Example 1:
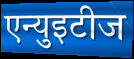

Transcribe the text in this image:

एन्युइटीज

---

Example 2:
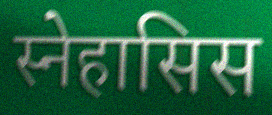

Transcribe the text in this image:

स्नेहासिस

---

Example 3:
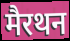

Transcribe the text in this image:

मैरथन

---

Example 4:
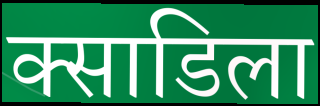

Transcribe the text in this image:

क्साडिला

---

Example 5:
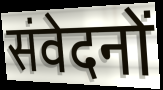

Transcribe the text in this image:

संवेदनों